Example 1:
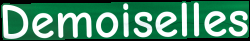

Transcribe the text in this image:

Demoiselles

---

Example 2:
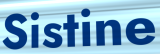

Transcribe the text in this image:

Sistine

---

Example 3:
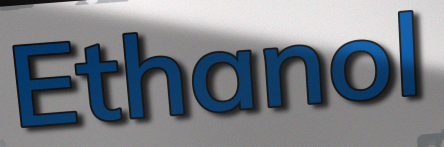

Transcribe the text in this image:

Ethanol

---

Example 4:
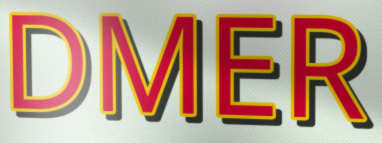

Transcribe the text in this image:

DMER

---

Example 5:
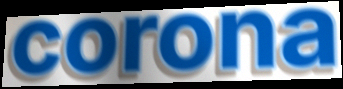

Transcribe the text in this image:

corona